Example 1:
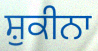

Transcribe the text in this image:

ਸ਼ੁਕੀਨਾ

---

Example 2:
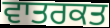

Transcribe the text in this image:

ਵਾਤਰਕਤ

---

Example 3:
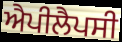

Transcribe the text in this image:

ਐਪੀਲੈਪਸੀ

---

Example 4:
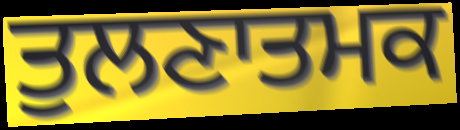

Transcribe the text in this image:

ਤੁਲਣਾਤਮਕ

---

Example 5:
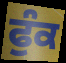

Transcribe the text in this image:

ਫੁੰਕ